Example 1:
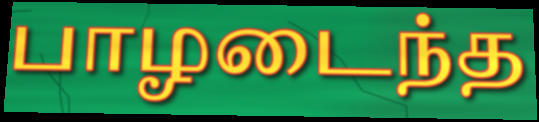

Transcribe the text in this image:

பாழடைந்த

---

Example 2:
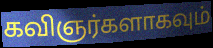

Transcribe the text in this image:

கவிஞர்களாகவும்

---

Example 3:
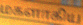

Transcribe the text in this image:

மகளாகிய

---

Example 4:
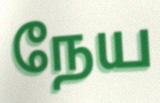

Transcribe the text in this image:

நேய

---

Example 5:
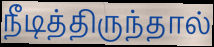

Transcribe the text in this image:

நீடித்திருந்தால்